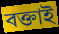
বক্তাই